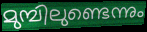
മുമ്പിലുണ്ടെന്നും